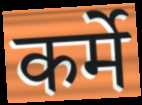
कर्मे